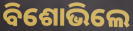
ବିଶୋଭିଲେ